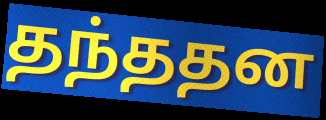
தந்ததன